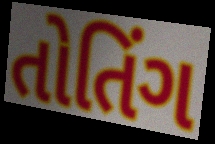
તોતિંગ